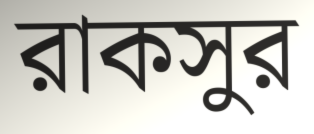
রাকসুর